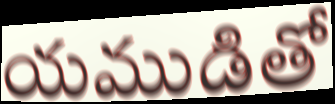
యముడితో